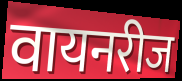
वायनरीज